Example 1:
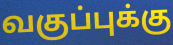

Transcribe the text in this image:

வகுப்புக்கு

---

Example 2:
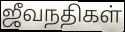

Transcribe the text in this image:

ஜீவநதிகள்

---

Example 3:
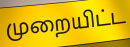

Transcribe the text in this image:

முறையிட்ட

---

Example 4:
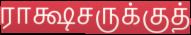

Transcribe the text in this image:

ராக்ஷசருக்குத்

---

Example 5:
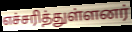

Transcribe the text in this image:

எச்சரித்துள்ளனர்